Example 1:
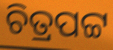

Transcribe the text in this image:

ଚିତ୍ରପଟ୍ଟ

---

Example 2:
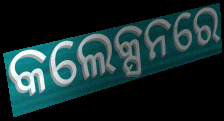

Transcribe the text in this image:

କଲେକ୍ସନରେ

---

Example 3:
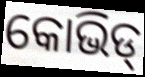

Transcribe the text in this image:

କୋଭିଡ୍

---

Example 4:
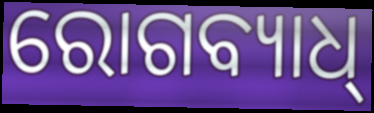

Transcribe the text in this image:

ରୋଗବ୍ୟାଧ୍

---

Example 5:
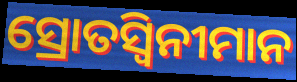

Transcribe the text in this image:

ସ୍ରୋତସ୍ୱିନୀମାନ